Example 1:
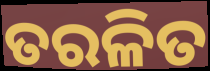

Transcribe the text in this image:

ତରଳିତ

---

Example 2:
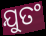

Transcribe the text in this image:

ଯୁତଂ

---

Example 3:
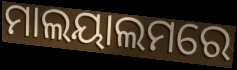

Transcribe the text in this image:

ମାଲୟାଲମରେ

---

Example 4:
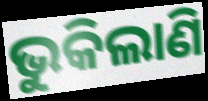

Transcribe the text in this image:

ଭୁକିଲାଣି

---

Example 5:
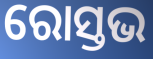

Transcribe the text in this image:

ରୋସ୍ତଭ